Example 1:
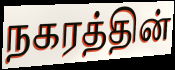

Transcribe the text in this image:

நகரத்தின்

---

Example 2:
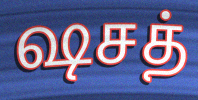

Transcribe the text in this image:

ஷசத்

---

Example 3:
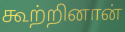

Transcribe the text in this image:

கூற்றினான்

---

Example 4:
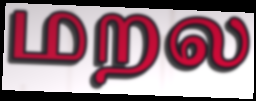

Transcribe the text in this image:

மறல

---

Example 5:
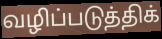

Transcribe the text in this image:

வழிப்படுத்திக்